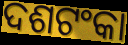
ଦଶଟଂକା